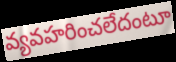
వ్యవహరించలేదంటూ